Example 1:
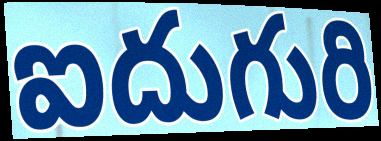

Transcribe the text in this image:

ఐదుగురి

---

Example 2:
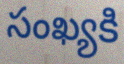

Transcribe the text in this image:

సంఖ్యకి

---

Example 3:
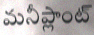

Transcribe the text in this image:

మనీప్లాంట్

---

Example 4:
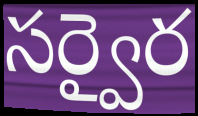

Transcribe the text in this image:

సర్వైర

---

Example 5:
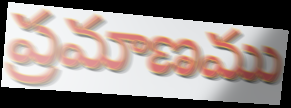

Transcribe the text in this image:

ప్రమాణము